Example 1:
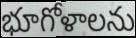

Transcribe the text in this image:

భూగోళాలను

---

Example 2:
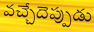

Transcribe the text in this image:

వచ్చేదెప్పుడు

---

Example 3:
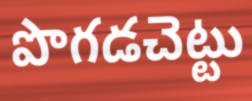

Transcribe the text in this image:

పొగడచెట్టు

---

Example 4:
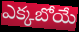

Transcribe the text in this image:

ఎక్కబోయే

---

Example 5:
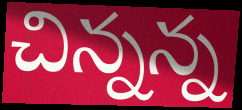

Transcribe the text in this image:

చిన్నన్న